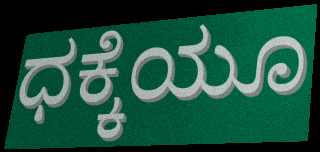
ಧಕ್ಕೆಯೂ